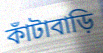
কাঁটাবাড়ি